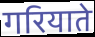
गरियाते